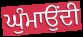
ਘੁੰਮਾਉਂਦੀ